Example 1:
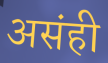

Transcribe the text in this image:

असंही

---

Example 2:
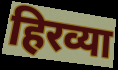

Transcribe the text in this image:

हिरव्या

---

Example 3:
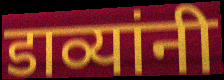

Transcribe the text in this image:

डाव्यांनी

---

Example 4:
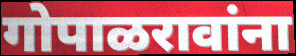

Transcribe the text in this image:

गोपाळरावांना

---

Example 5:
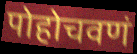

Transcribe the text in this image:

पोहोचवणं